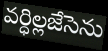
వర్ధిల్లజేసెను